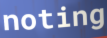
noting